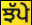
ਝੱਪੇ